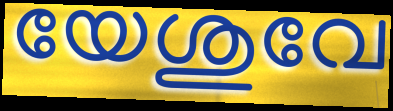
യേശുവേ